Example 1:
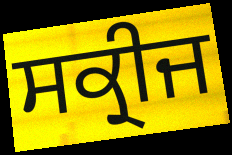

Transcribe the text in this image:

ਸਕ੍ਰੀਜ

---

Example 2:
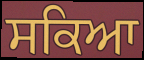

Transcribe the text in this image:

ਸਕਿਆ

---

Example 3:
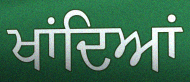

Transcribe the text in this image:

ਖਾਂਦਿਆਂ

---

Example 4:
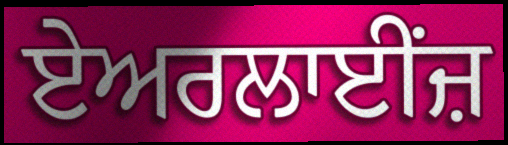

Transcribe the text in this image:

ਏਅਰਲਾਈਂਜ਼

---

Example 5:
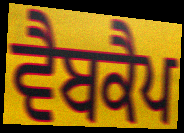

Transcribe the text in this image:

ਵੈਬਕੈਪ